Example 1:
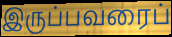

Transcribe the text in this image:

இருப்பவரைப்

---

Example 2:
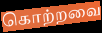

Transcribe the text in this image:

கொற்றவை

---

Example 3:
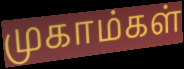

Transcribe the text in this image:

முகாம்கள்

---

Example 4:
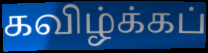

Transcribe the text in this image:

கவிழ்க்கப்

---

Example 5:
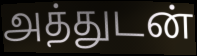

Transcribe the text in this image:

அத்துடன்